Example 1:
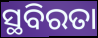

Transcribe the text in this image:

ସ୍ଥବିରତା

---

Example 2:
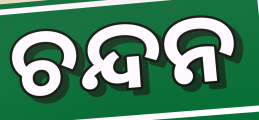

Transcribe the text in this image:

ଚନ୍ଦନ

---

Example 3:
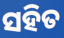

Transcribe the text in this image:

ସହିତ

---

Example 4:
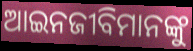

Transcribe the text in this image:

ଆଇନଜୀବିମାନଙ୍କୁ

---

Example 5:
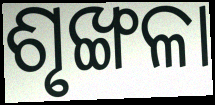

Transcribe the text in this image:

ଶୃଙ୍ଖଳା